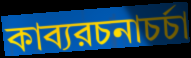
কাব্যরচনাচর্চা